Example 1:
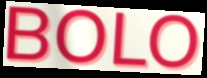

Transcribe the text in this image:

BOLO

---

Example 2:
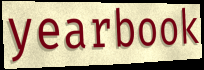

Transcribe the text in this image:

yearbook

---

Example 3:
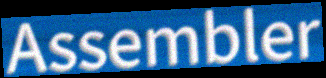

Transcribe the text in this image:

Assembler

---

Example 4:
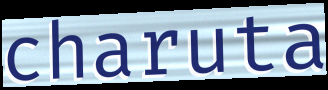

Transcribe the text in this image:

charuta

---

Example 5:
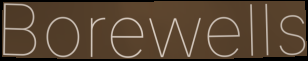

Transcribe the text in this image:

Borewells